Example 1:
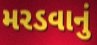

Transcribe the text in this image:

મરડવાનું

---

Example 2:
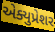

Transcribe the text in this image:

એક્યુપ્રેશર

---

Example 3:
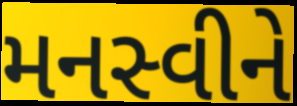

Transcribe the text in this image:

મનસ્વીને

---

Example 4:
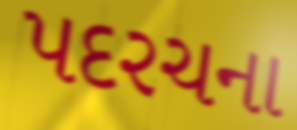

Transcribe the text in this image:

પદરચના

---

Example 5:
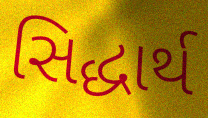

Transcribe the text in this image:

સિદ્ધાર્થ